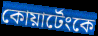
কোয়ার্টেংকে